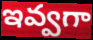
ఇవ్వగా